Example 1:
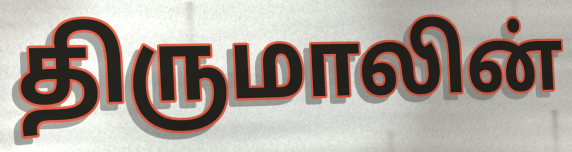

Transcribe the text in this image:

திருமாலின்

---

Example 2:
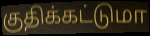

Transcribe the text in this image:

குதிக்கட்டுமா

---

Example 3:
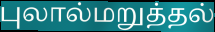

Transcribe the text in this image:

புலால்மறுத்தல்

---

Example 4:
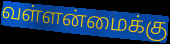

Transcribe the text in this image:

வள்ளன்மைக்கு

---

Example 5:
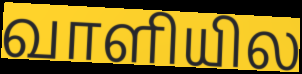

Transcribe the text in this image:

வாளியில